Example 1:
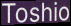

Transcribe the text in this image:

Toshio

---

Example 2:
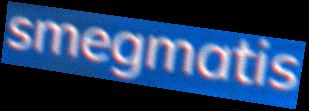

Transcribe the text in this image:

smegmatis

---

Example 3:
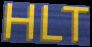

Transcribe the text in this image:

HLT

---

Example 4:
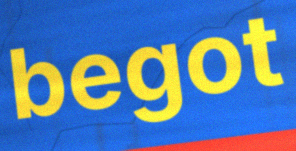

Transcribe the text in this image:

begot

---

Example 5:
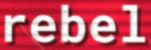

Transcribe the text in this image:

rebel